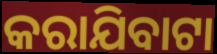
କରାଯିବାଟା